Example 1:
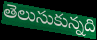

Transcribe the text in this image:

తెలుసుకున్నది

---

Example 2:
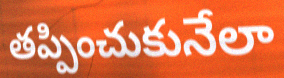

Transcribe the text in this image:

తప్పించుకునేలా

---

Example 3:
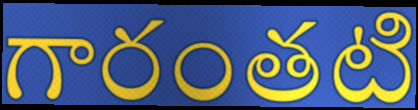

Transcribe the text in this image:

గారంతటి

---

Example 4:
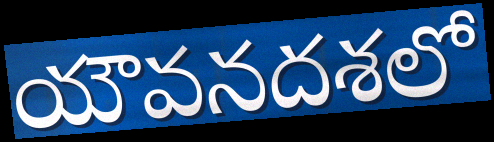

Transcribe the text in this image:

యౌవనదశలో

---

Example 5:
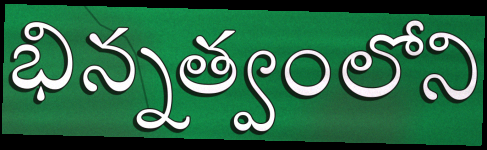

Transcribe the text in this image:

భిన్నత్వంలోని